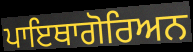
ਪਾਇਥਾਗੋਰਿਅਨ